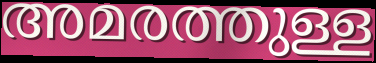
അമരത്തുള്ള